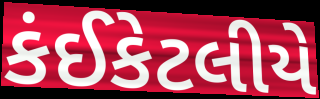
કંઈકેટલીયે